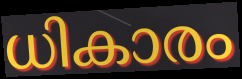
ധികാരം